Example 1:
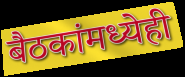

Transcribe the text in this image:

बैठकांमध्येही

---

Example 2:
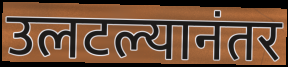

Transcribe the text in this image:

उलटल्यानंतर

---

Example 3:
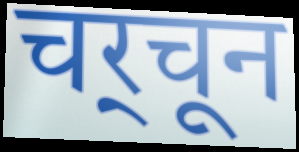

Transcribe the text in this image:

चर्चून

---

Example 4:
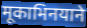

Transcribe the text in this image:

मूकाभिनयाने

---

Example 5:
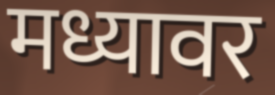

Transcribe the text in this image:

मध्यावर